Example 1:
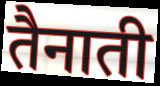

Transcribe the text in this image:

तैनाती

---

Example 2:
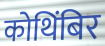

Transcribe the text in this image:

कोथिंबिर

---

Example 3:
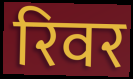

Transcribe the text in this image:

रिवर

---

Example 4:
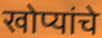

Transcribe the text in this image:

खोप्यांचे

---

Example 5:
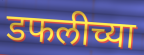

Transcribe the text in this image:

डफलीच्या